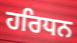
ਹਰਿਧਨ